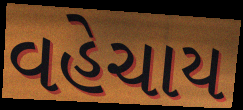
વહેચાય